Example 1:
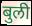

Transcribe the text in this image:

बुली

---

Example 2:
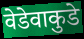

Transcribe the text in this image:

वेडेवाकुडे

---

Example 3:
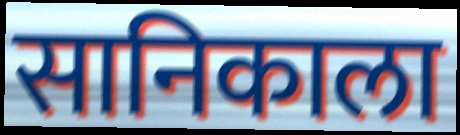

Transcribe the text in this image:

सानिकाला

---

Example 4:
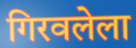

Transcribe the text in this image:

गिरवलेला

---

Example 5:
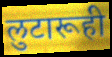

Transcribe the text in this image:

लुटारूही